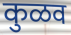
कुळव